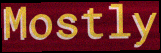
Mostly